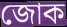
জোক